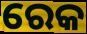
ରେକ